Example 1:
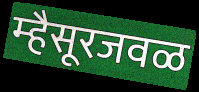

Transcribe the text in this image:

म्हैसूरजवळ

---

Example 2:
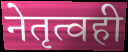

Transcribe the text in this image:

नेतृत्वही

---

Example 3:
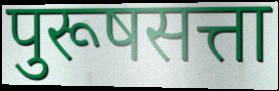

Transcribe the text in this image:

पुरूषसत्ता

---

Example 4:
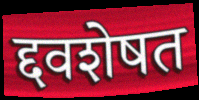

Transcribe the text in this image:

द्दवशेषत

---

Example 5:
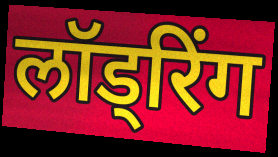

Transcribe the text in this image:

लॉड्रिंग